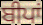
ਬੀਪਾਂ